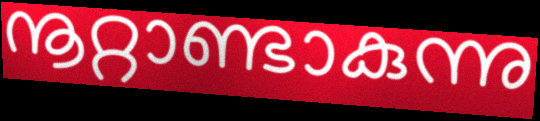
നൂറ്റാണ്ടാകുന്നു